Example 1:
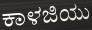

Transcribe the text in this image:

ಕಾಳಜಿಯು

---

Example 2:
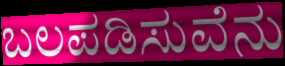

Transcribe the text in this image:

ಬಲಪಡಿಸುವೆನು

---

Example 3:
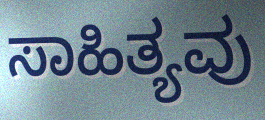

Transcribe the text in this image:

ಸಾಹಿತ್ಯವು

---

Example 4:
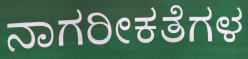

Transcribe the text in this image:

ನಾಗರೀಕತೆಗಳ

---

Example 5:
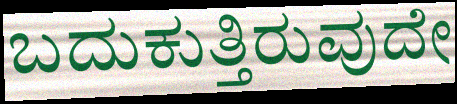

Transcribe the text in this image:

ಬದುಕುತ್ತಿರುವುದೇ